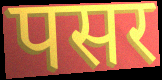
पसर